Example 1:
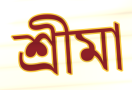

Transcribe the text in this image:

শ্রীমা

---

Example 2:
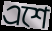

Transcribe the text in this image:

এশে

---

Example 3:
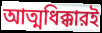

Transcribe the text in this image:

আত্মধিক্কারই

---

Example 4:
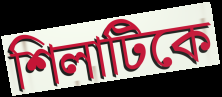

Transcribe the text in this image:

শিলাটিকে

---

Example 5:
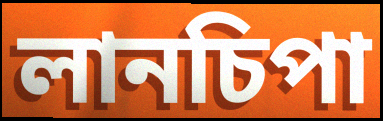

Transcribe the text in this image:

লানচিপা